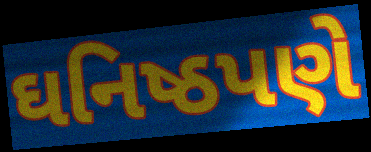
ઘનિષ્ઠપણે